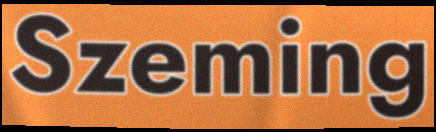
Szeming